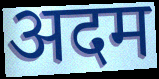
अदम